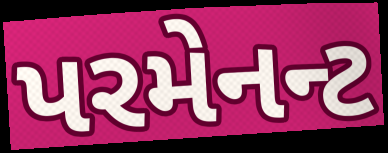
પરમેનન્ટ